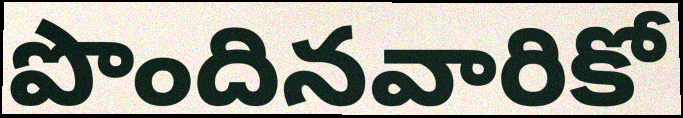
పొందినవారికో